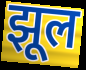
झूल